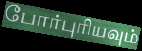
போர்புரியவும்